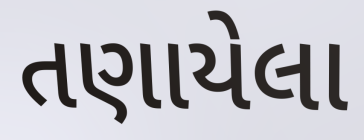
તણાયેલા